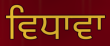
ਵਿਧਾਵਾ